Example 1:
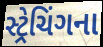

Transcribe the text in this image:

સ્ટ્રેચિંગના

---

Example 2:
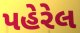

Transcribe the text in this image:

પહેરેલ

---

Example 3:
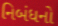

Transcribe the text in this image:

નિબંધનો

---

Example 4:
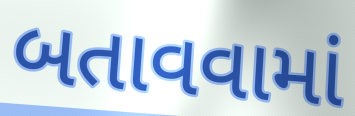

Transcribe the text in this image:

બતાવવામાં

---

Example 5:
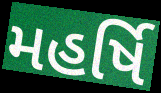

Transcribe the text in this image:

મહર્ષિ